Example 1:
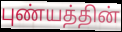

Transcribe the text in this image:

புண்யத்தின்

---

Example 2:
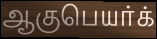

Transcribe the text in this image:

ஆகுபெயர்க்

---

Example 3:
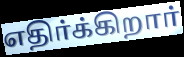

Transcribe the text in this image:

எதிர்க்கிறார்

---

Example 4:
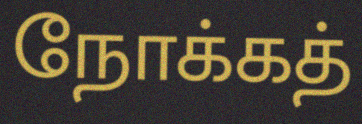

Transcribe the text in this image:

நோக்கத்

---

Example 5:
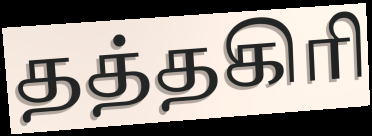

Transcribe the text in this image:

தத்தகிரி